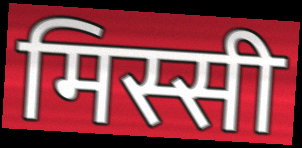
मिस्सी